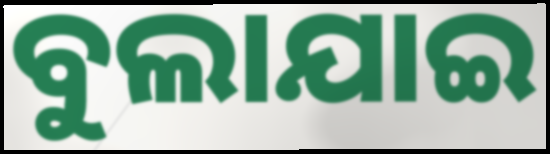
ବୁଲାଯାଇ